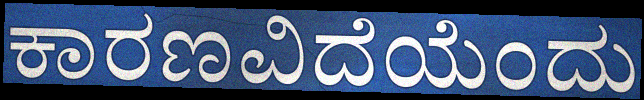
ಕಾರಣವಿದೆಯೆಂದು